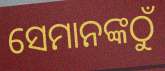
ସେମାନଙ୍କଠୁଁ